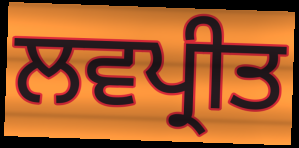
ਲਵਪ੍ਰੀਤ